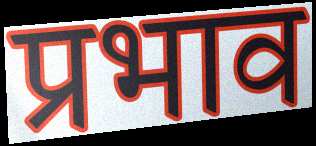
प्रभाव